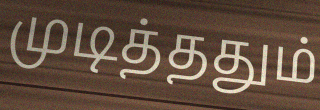
முடித்ததும்